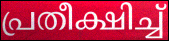
പ്രതീക്ഷിച്ച്